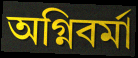
অগ্নিবর্মা